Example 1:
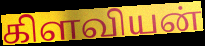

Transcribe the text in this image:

கிளவியன்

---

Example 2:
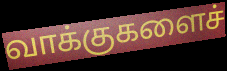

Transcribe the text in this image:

வாக்குகளைச்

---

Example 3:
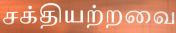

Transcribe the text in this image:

சக்தியற்றவை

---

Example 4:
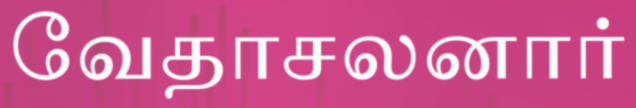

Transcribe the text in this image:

வேதாசலனார்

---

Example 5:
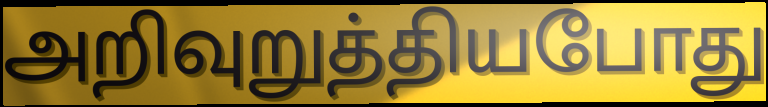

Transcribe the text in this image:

அறிவுறுத்தியபோது